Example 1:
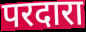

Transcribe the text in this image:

परदारा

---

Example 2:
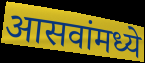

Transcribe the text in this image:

आसवांमध्ये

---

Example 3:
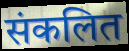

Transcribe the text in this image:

संकलित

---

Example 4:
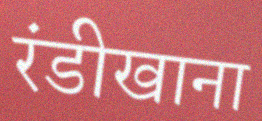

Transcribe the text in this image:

रंडीखाना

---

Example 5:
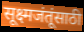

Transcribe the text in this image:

सूक्ष्मजंतूंसाठी